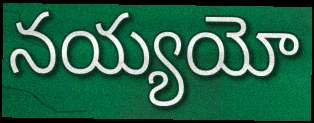
నయ్యయో